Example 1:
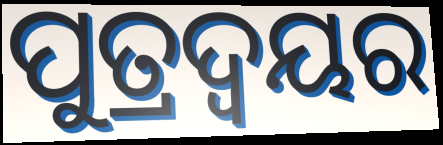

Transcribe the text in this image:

ପୁତ୍ରଦ୍ୱୟର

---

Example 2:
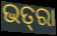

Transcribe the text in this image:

ଭତ୍‌ରା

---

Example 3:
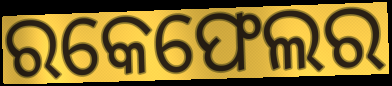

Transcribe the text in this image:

ରକେଫେଲର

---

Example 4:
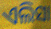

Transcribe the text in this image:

ଏଲିସା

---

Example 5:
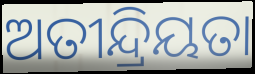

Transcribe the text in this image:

ଅତୀନ୍ଦ୍ରିୟତା